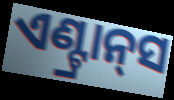
ଏଣ୍ଟ୍ରାନ୍‌ସ